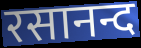
रसानन्द